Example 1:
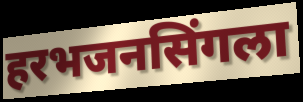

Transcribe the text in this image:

हरभजनसिंगला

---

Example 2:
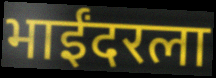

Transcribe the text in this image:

भाईंदरला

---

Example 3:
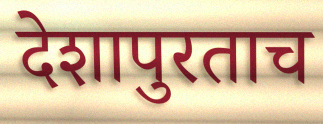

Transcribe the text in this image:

देशापुरताच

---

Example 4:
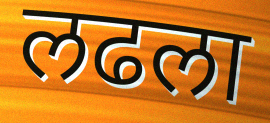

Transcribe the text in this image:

लढला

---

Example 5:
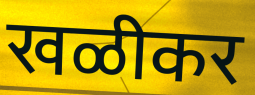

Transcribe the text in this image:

खळीकर